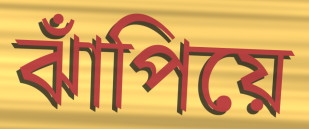
ঝাঁপিয়ে